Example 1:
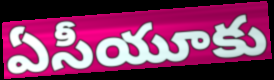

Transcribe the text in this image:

ఏసీయూకు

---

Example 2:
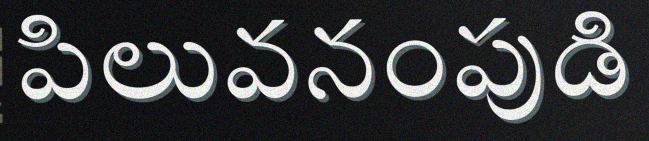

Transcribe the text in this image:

పిలువనంపుడి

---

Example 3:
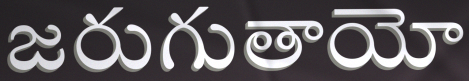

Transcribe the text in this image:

జరుగుతాయో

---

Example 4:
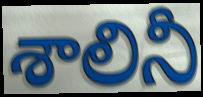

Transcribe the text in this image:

శాలినీ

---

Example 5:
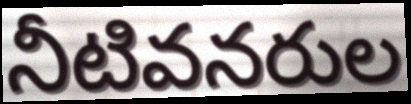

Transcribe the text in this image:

నీటివనరుల